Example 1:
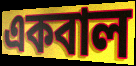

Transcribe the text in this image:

একবাল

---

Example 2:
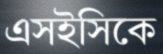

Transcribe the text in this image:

এসইসিকে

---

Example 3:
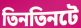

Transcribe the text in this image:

তিনতিনটে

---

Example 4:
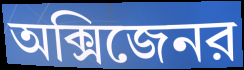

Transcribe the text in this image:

অক্সিজেনর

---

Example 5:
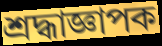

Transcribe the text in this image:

শ্রদ্ধাজ্ঞাপক